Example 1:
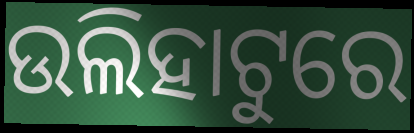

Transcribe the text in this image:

ଉଲିହାଟୁରେ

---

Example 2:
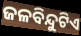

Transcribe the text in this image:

ଜଳବିନ୍ଦୁଟିଏ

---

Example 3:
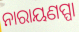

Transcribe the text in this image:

ନାରାୟଣପ୍ପା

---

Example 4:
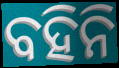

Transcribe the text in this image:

ବହିନି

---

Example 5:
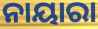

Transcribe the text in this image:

ନାୟାରା